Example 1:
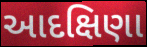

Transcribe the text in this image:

આદક્ષિણા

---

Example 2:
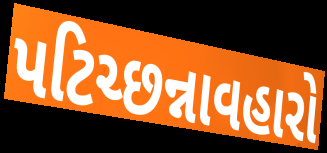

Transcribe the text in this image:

પટિચ્છન્નાવહારો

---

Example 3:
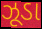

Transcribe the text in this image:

ઝૂડા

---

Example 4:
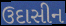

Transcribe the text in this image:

ઉદાસીન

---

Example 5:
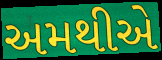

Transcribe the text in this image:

અમથીએ